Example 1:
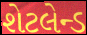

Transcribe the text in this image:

શેટલેન્ડ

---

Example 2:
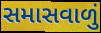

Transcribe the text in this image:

સમાસવાળું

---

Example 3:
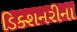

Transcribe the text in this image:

ડિક્શનરીના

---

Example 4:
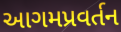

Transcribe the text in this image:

આગમપ્રવર્તન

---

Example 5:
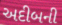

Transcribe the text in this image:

અદીબની